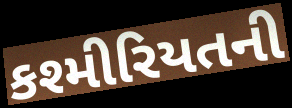
કશ્મીરિયતની